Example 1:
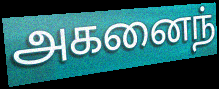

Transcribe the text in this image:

அகனைந்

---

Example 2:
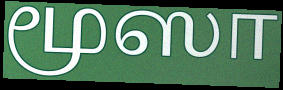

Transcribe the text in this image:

மூஸா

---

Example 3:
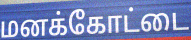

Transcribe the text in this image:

மனக்கோட்டை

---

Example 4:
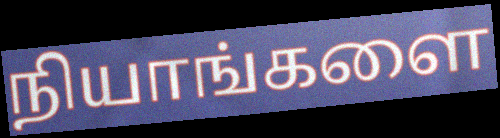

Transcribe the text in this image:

நியாங்களை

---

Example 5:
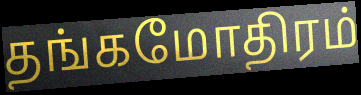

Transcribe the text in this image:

தங்கமோதிரம்